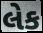
લેક